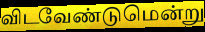
விடவேண்டுமென்று